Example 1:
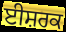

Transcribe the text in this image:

ਈਸ਼ਰਕ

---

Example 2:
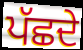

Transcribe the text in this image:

ਪੱਛਦੇ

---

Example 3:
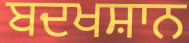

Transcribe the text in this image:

ਬਦਖਸ਼ਾਨ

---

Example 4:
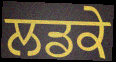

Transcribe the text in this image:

ਲਡਕੇ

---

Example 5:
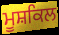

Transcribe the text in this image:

ਮੂਸ਼ਕਿਲ